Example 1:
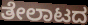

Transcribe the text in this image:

ತೇಲಾಟದ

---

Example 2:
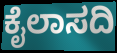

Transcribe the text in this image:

ಕೈಲಾಸದಿ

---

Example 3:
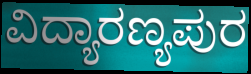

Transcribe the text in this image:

ವಿದ್ಯಾರಣ್ಯಪುರ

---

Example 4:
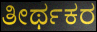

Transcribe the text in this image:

ತೀರ್ಥಕರ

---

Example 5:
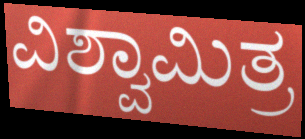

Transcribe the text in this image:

ವಿಶ್ವಾಮಿತ್ರ